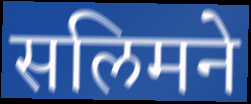
सलिमने